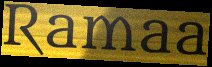
Ramaa